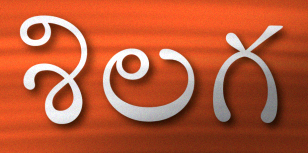
శిలగ